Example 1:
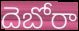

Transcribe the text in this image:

దెబోరా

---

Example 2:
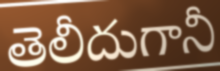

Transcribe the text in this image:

తెలీదుగానీ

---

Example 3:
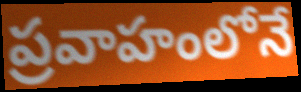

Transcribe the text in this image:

ప్రవాహంలోనే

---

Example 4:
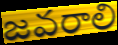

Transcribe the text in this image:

జవరాలి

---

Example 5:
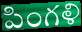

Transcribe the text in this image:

పింగళి